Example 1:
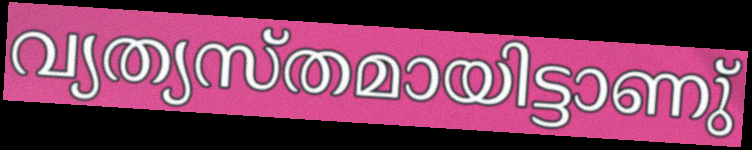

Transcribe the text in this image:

വ്യത്യസ്തമായിട്ടാണു്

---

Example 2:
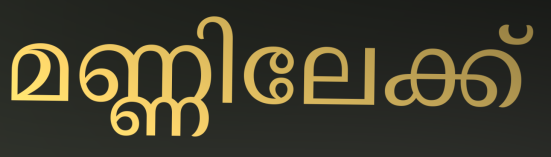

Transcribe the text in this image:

മണ്ണിലേക്ക്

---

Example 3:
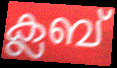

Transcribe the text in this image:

ക്ലബ്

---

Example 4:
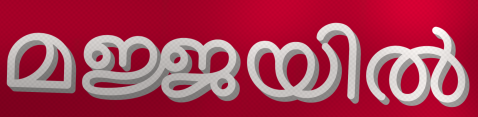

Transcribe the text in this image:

മജ്ജയിൽ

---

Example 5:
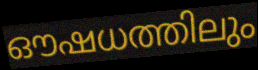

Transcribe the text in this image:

ഔഷധത്തിലും